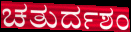
ಚತುರ್ದಶಂ